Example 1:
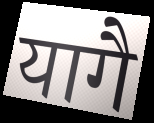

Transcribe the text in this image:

यागै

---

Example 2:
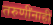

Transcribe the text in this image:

तरुणींनाही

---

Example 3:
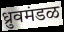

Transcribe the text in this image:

ध्रुवमंडळ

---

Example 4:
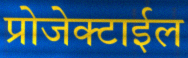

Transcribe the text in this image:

प्रोजेक्टाईल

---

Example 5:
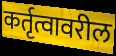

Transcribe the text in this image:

कर्तृत्वावरील